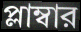
প্লাম্বার